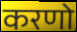
करणो